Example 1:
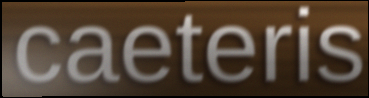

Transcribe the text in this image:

caeteris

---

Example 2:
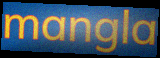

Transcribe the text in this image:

mangla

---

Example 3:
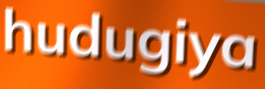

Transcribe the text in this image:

hudugiya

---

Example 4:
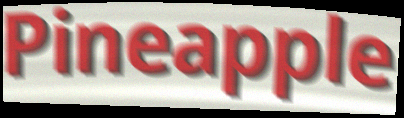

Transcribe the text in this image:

Pineapple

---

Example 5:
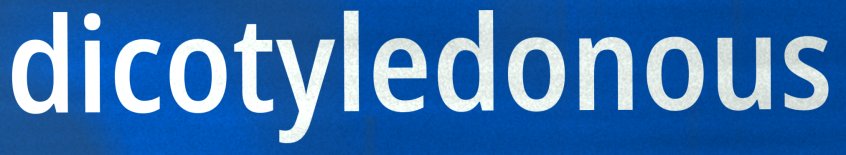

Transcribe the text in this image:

dicotyledonous